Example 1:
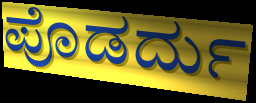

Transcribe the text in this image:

ಪೊಡರ್ದು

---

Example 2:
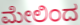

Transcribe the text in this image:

ಮೇಲಿಂದ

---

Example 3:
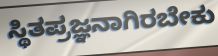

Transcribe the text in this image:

ಸ್ಥಿತಪ್ರಜ್ಞನಾಗಿರಬೇಕು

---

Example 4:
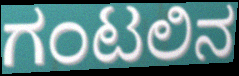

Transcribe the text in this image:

ಗಂಟಲಿನ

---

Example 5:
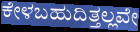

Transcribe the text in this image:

ಕೇಳಬಹುದಿತ್ತಲ್ಲವೇ